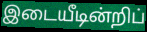
இடையீடின்றிப்